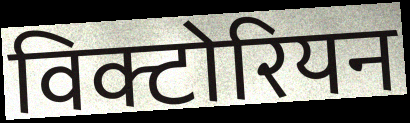
विक्टोरियन